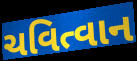
ચવિત્વાન